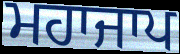
ਮਹਾਜਾਪ